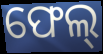
ଫେଲ୍